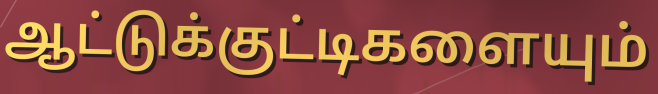
ஆட்டுக்குட்டிகளையும்